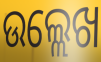
ଉଲ୍ଲେଖ